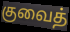
குவைத்